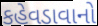
કહેવડાવાનો